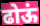
ढोऊं